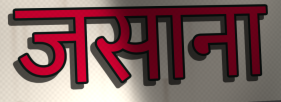
जसाना